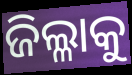
ଜିଲ୍ଳାକୁ